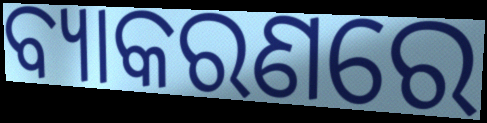
ବ୍ୟାକରଣରେ